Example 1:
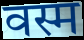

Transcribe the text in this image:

वस्म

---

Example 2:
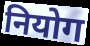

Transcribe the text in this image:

नियोग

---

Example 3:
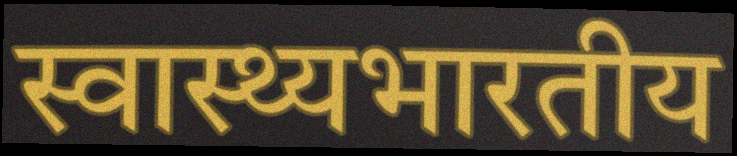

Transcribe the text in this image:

स्वास्थ्यभारतीय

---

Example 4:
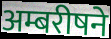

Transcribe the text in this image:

अम्बरीषने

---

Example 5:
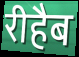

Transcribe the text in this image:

रीहैब